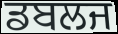
ਡਬਲਜ